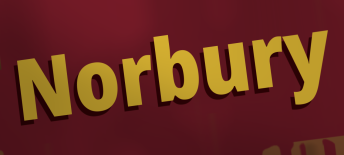
Norbury